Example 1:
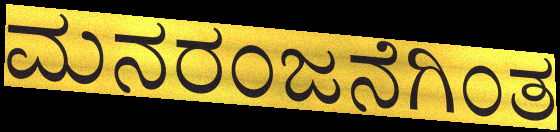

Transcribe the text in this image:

ಮನರಂಜನೆಗಿಂತ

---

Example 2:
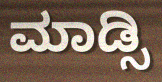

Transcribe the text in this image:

ಮಾಡ್ಸಿ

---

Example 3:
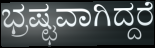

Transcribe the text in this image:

ಭ್ರಷ್ಟವಾಗಿದ್ದರೆ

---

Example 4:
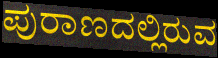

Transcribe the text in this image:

ಪುರಾಣದಲ್ಲಿರುವ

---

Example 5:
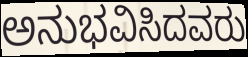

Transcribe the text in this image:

ಅನುಭವಿಸಿದವರು